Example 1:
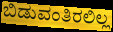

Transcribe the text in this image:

ಬಿಡುವಂತಿರಲಿಲ್ಲ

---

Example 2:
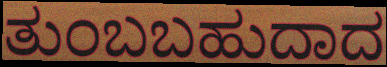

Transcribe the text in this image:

ತುಂಬಬಹುದಾದ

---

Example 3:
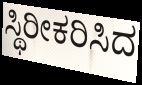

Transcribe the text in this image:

ಸ್ಥಿರೀಕರಿಸಿದ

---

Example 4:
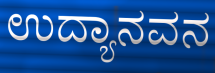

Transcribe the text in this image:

ಉದ್ಯಾನವನ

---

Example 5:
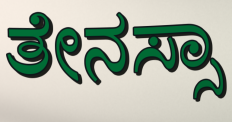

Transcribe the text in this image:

ತೇನಸ್ಸಾ